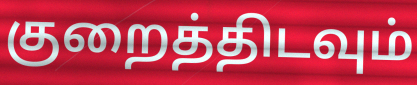
குறைத்திடவும்